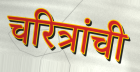
चरित्रांची